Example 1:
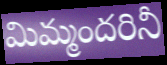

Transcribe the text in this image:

మిమ్మందరినీ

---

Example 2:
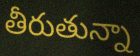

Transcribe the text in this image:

తీరుతున్నా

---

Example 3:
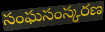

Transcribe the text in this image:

సంఘసంస్కరణ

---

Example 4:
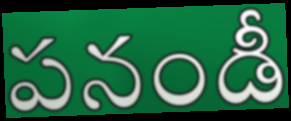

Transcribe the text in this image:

పనండీ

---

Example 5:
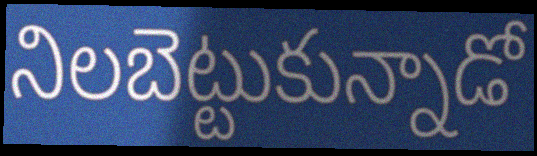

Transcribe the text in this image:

నిలబెట్టుకున్నాడో